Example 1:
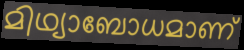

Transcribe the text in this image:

മിഥ്യാബോധമാണ്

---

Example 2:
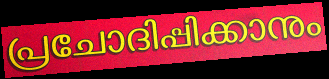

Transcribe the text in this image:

പ്രചോദിപ്പിക്കാനും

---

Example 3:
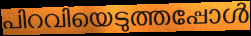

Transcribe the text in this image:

പിറവിയെടുത്തപ്പോൾ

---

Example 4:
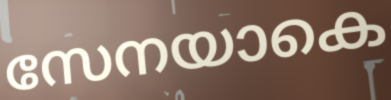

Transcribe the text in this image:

സേനയാകെ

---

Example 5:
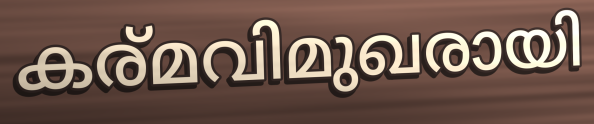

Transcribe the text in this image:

കര്മവിമുഖരായി